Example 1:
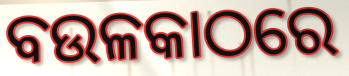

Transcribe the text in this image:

ବଉଳକାଠରେ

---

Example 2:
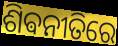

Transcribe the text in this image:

ଶିଵନୀତିରେ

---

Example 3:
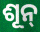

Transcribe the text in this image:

ଶୂନ୍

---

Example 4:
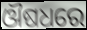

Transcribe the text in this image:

ଔଷଧରେ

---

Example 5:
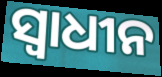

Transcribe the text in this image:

ସ୍ୱାଧୀନ